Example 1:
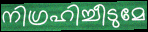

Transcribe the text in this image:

നിഗ്രഹിച്ചീടുമേ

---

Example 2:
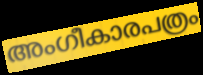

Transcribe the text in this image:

അംഗീകാരപത്രം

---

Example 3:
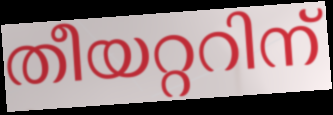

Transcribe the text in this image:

തീയറ്ററിന്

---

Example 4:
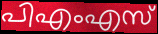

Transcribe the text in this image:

പിഎംഎസ്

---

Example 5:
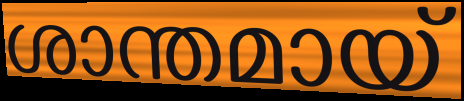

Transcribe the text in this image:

ശാന്തമായ്